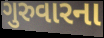
ગુરુવારના